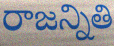
రాజన్నితి